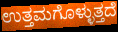
ಉತ್ತಮಗೊಳ್ಳುತ್ತದೆ